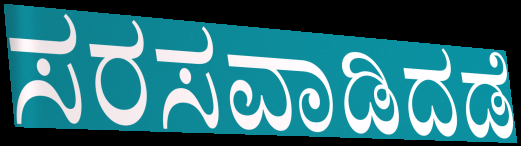
ಸರಸವಾಡಿದಡೆ